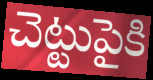
చెట్టుపైకి